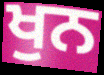
ਖੁਨ